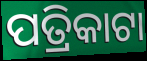
ପତ୍ରିକାଟା